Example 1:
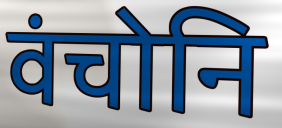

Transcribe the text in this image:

वंचोनि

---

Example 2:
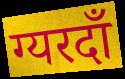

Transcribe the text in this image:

ग्यरदाँ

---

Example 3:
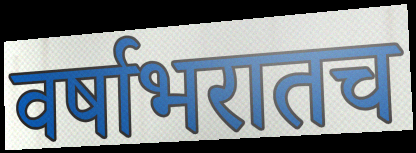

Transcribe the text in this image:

वर्षाभरातच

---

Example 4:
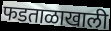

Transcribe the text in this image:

फडताळाखाली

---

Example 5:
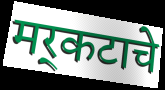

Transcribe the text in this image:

मर्कटाचे